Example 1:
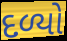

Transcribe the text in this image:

દળ્યો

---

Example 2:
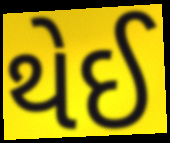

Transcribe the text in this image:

થેઈ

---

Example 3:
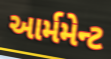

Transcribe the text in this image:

આર્મમેન્ટ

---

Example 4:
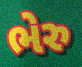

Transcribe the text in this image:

ભેરુ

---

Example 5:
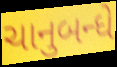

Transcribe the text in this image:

ચાનુબન્ધે